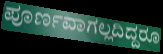
ಪೂರ್ಣವಾಗಲ್ಲದಿದ್ದರೂ